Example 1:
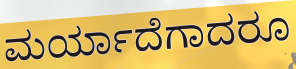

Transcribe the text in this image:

ಮರ್ಯಾದೆಗಾದರೂ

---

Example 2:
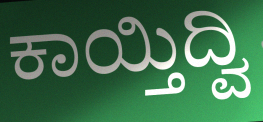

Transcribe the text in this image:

ಕಾಯ್ತಿದ್ವಿ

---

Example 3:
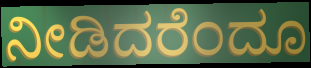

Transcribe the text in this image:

ನೀಡಿದರೆಂದೂ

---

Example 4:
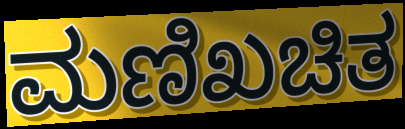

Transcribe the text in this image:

ಮಣಿಖಚಿತ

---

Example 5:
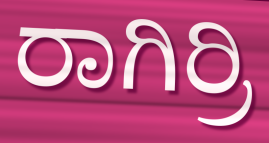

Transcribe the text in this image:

ರಾಗಿರ್ರಿ